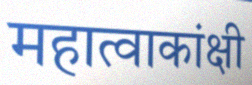
महात्वाकांक्षी